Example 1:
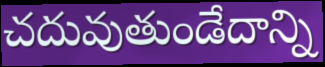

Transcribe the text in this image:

చదువుతుండేదాన్ని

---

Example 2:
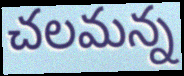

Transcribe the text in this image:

చలమన్న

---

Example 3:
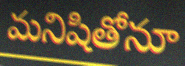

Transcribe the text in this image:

మనిషితోనూ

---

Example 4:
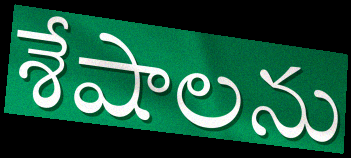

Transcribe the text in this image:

శేషాలను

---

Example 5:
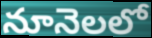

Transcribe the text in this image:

నూనెలలో